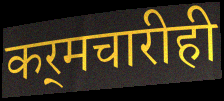
कर्मचारीही